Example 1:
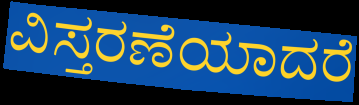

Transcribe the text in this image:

ವಿಸ್ತರಣೆಯಾದರೆ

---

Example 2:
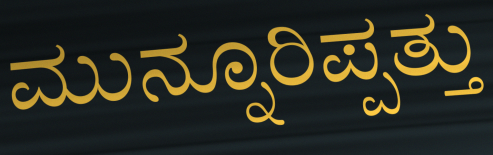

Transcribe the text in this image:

ಮುನ್ನೂರಿಪ್ಪತ್ತು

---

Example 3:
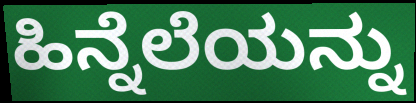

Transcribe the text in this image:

ಹಿನ್ನೆಲೆಯನ್ನು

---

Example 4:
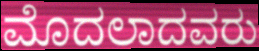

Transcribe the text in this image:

ಮೊದಲಾದವರು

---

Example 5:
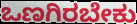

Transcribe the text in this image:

ಒಣಗಿರಬೇಕು